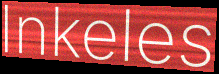
Inkeles